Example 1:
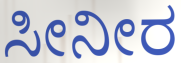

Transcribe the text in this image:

ಸೀನೀರ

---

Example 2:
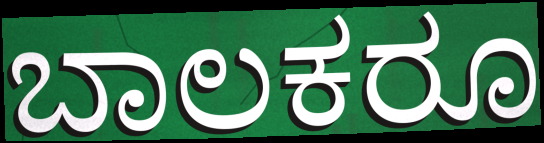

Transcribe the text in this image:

ಬಾಲಕರೂ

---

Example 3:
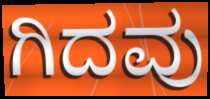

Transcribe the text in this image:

ಗಿದವು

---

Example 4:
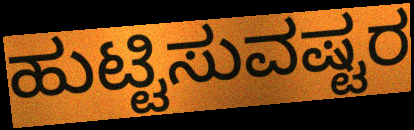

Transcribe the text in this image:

ಹುಟ್ಟಿಸುವಷ್ಟರ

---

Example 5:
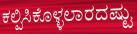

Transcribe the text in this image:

ಕಲ್ಪಿಸಿಕೊಳ್ಳಲಾರದಷ್ಟು